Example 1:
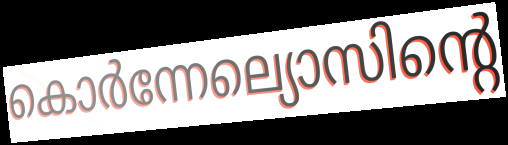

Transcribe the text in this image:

കൊർന്നേല്യൊസിന്റെ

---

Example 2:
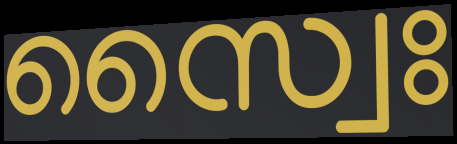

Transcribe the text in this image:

സ്വൈഃ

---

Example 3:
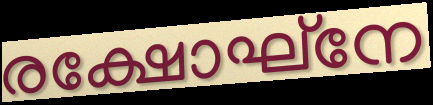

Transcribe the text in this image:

രക്ഷോഘ്നേ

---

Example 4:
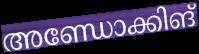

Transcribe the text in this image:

അണ്ഡോക്കിങ്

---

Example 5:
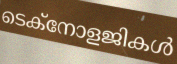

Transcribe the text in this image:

ടെക്നോളജികൾ